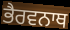
ਭੈਰਵਨਾਥ